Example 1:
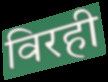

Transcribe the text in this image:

विरही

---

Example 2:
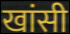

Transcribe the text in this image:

खांसी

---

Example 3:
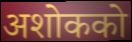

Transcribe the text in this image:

अशोकको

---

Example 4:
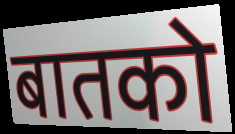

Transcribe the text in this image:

बातको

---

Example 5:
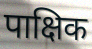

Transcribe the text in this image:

पाक्षिक